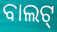
ବାଲଟ୍